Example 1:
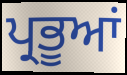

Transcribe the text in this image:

ਪ੍ਰਭੂਆਂ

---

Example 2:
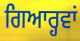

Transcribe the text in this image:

ਗਿਆਰ੍ਹਵਾਂ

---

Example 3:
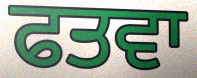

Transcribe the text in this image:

ਫਤਵਾ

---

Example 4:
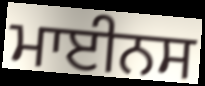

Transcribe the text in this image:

ਮਾਈਨਸ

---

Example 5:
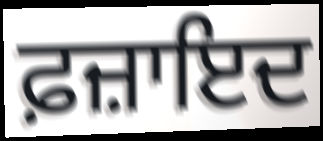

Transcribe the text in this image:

ਫ਼ਜ਼ਾਇਦ